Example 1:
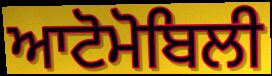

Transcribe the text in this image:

ਆਟੋਮੋਬਿਲੀ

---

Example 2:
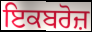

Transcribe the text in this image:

ਇਕਬਰੋਜ਼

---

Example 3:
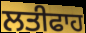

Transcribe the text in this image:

ਲਤੀਫਾਹ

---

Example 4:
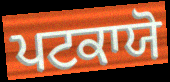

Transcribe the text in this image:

ਪਟਕਾਯੋ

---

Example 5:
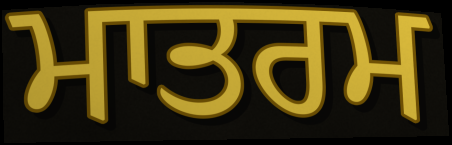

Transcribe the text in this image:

ਮਾਤਰਮ